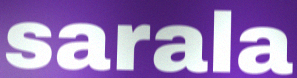
sarala